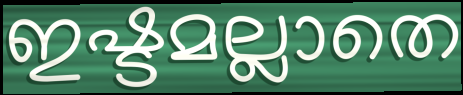
ഇഷ്ടമല്ലാതെ